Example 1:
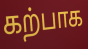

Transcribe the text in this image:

கற்பாக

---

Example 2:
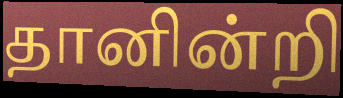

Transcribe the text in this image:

தானின்றி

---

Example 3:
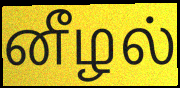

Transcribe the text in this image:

னீழல்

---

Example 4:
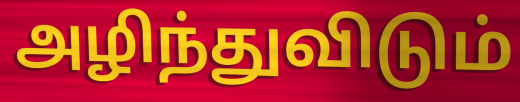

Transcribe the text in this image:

அழிந்துவிடும்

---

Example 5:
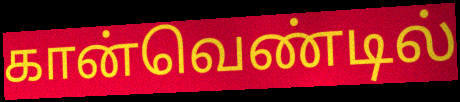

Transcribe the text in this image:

கான்வெண்டில்